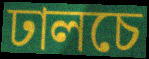
ঢালচে